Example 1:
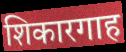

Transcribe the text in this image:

शिकारगाह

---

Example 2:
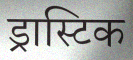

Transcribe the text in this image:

ड्रास्टिक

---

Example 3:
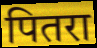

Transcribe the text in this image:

पितरा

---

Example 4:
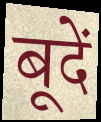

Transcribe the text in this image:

बूदें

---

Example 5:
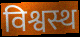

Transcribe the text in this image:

विश्वस्थ